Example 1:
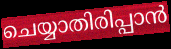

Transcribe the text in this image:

ചെയ്യാതിരിപ്പാൻ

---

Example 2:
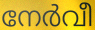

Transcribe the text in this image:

നേർവീ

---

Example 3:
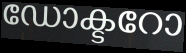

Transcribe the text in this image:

ഡോക്ടറോ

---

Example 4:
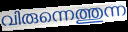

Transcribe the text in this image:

വിരുന്നെത്തുന്ന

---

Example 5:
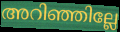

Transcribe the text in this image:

അറിഞ്ഞില്ലേ